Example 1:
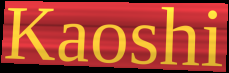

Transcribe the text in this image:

Kaoshi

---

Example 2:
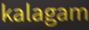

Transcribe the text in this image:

kalagam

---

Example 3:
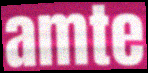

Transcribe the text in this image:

amte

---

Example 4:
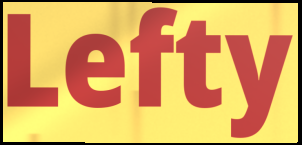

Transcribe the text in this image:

Lefty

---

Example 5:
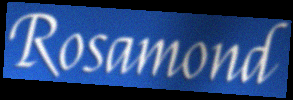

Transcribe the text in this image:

Rosamond